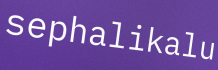
sephalikalu